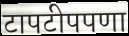
टापटीपपणा